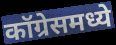
कॉग्रेसमध्ये